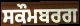
ਸਕੌਮਬਰਗ